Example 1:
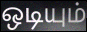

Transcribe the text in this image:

ஒடியும்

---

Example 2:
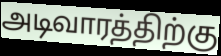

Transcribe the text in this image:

அடிவாரத்திற்கு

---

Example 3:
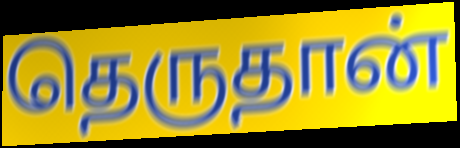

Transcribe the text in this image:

தெருதான்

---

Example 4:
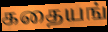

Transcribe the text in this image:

கதையங்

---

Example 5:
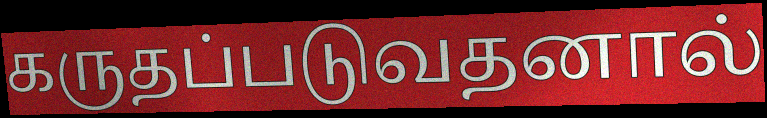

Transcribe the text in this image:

கருதப்படுவதனால்